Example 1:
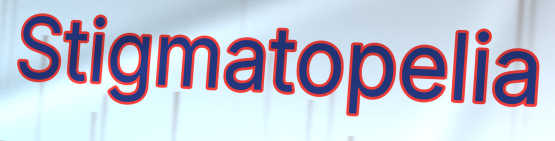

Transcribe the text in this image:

Stigmatopelia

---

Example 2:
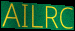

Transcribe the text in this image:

AILRC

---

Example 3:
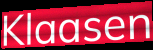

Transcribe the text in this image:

Klaasen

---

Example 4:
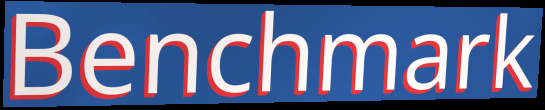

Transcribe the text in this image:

Benchmark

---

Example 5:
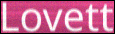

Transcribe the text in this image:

Lovett